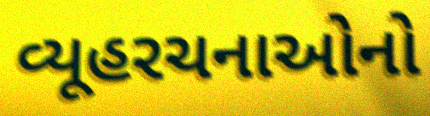
વ્યૂહરચનાઓનો